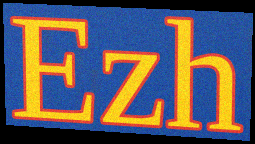
Ezh